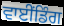
ਵਾਈਂਡਿੰਗ